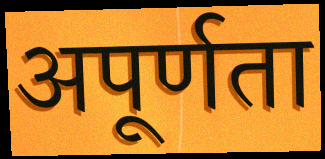
अपूर्णता